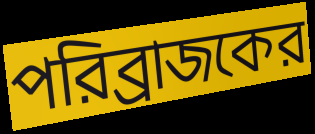
পরিব্রাজকের